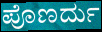
ಪೊಣರ್ದು